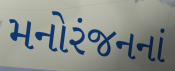
મનોરંજનનાં